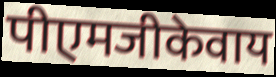
पीएमजीकेवाय